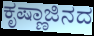
ಕೃಷ್ಣಾಜಿನದ